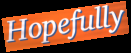
Hopefully